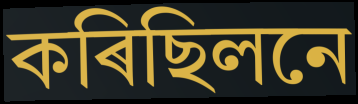
কৰিছিলনে